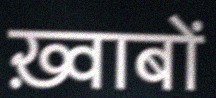
ख़्वाबों